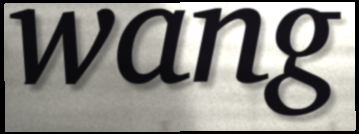
wang